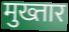
मुख्तार